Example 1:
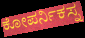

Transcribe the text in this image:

ಕೋಪರ್ನಿಕಸ್ನ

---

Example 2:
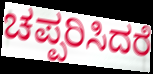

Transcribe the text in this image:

ಚಪ್ಪರಿಸಿದರೆ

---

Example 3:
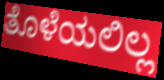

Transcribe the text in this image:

ತೊಳೆಯಲಿಲ್ಲ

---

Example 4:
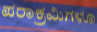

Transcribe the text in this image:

ಪರಾಕ್ರಮಿಗಳೂ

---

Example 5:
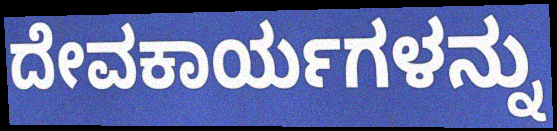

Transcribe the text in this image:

ದೇವಕಾರ್ಯಗಳನ್ನು